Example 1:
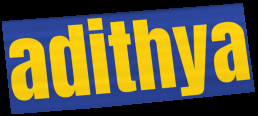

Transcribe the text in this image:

adithya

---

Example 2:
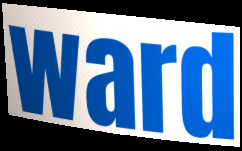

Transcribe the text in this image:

ward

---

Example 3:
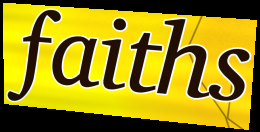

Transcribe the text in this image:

faiths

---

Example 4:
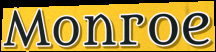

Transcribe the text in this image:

Monroe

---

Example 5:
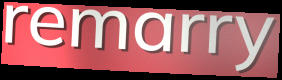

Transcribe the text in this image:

remarry